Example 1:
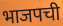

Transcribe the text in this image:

भाजपची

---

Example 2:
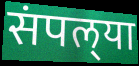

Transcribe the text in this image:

संपल्या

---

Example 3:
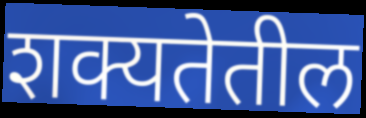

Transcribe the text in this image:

शक्यतेतील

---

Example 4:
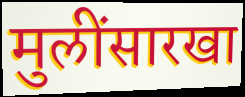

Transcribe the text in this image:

मुलींसारखा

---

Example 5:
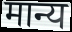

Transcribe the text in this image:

मान्य